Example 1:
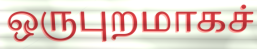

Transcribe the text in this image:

ஒருபுறமாகச்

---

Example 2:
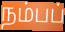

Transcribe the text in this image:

நம்பப்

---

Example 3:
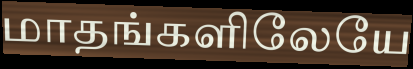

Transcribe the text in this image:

மாதங்களிலேயே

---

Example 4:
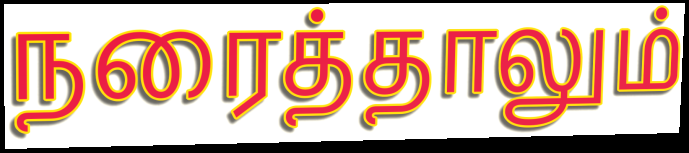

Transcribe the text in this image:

நரைத்தாலும்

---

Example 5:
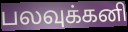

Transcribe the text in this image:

பலவுக்கனி